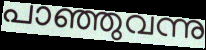
പാഞ്ഞുവന്നു